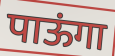
पाऊंगा